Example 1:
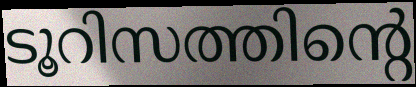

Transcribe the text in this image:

ടൂറിസത്തിന്റെ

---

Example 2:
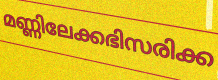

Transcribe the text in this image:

മണ്ണിലേക്കഭിസരിക്ക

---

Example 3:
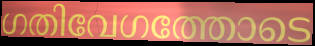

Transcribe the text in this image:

ഗതിവേഗത്തോടെ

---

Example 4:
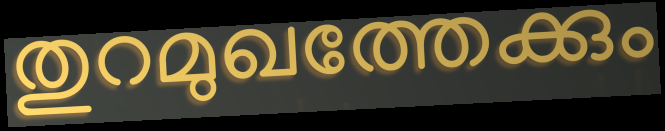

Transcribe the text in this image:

തുറമുഖത്തേക്കും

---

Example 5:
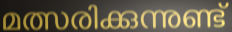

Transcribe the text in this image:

മത്സരിക്കുന്നുണ്ട്